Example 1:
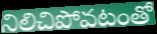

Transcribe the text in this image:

నిలిచిపోవటంతో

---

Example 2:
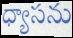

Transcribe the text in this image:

ధ్యాసను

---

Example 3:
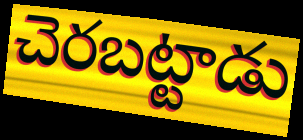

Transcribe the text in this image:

చెరబట్టాడు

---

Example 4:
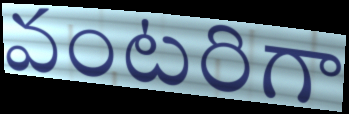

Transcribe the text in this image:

వంటరిగా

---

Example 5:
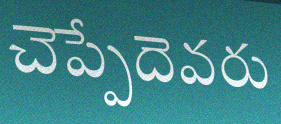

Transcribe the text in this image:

చెప్పేదెవరు